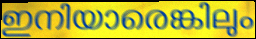
ഇനിയാരെങ്കിലും